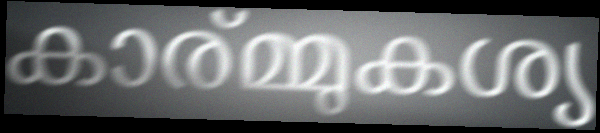
കാര്മ്മുകശ്യ